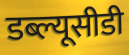
डब्ल्यूसीडी